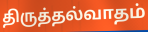
திருத்தல்வாதம்